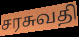
சரசுவதி